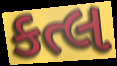
કત્લ